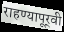
राहण्यापूर्वी